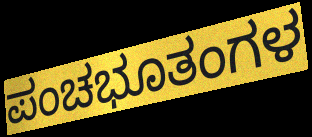
ಪಂಚಭೂತಂಗಳ